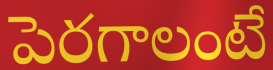
పెరగాలంటే